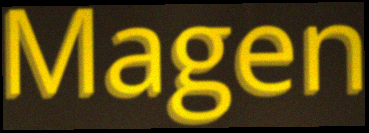
Magen